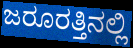
ಜರೂರತ್ತಿನಲ್ಲಿ